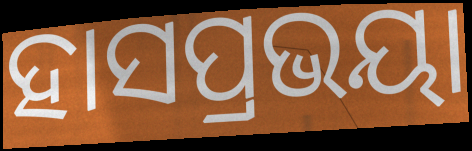
ହାସପ୍ରଭୟା